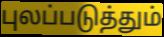
புலப்படுத்தும்